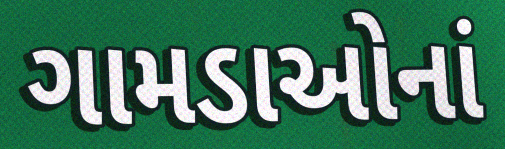
ગામડાઓનાં